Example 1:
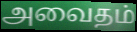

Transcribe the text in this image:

அவைதம்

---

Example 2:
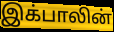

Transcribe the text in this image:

இக்பாலின்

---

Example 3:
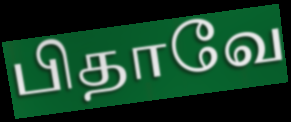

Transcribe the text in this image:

பிதாவே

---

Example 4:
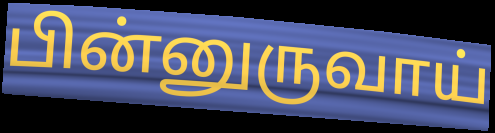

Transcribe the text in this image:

பின்னுருவாய்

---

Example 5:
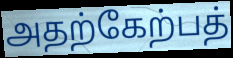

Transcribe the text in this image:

அதற்கேற்பத்